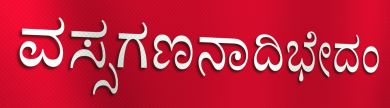
ವಸ್ಸಗಣನಾದಿಭೇದಂ